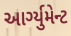
આર્ગ્યુમેન્ટ